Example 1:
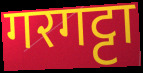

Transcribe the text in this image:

गरगट्टा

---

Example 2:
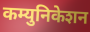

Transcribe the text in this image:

कम्युनिकेशन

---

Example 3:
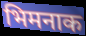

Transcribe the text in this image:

भिमनाक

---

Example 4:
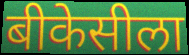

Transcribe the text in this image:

बीकेसीला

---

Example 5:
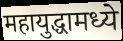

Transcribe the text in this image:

महायुद्धामध्ये